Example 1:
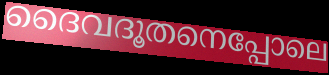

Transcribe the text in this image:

ദൈവദൂതനെപ്പോലെ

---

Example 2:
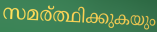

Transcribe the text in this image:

സമര്ത്ഥിക്കുകയും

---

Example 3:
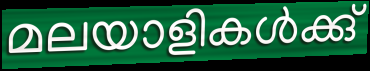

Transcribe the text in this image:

മലയാളികൾക്കു്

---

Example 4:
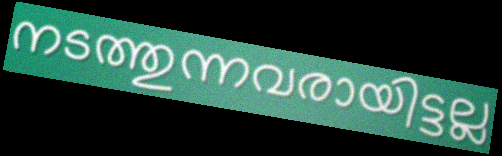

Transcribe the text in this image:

നടത്തുന്നവരായിട്ടല്ല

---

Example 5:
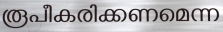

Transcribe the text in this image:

രൂപീകരിക്കണമെന്ന